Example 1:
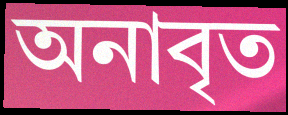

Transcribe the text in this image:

অনাবৃত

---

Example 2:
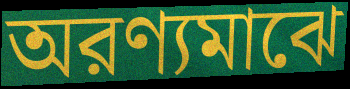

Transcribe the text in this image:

অরণ্যমাঝে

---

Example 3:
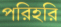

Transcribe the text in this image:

পরিহরি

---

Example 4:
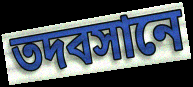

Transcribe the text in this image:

তদবসানে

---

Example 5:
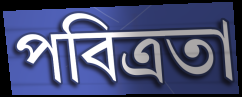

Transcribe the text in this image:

পবিত্রতা